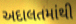
અદાલતમાંથી